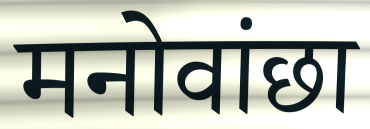
मनोवांछा